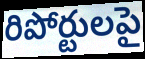
రిపోర్టులపై